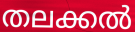
തലക്കൽ